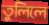
তুলিলে